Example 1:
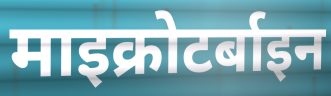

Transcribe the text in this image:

माइक्रोटर्बाइन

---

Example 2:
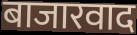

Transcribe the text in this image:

बाजारवाद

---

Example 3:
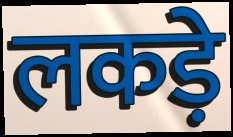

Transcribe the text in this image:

लकड़े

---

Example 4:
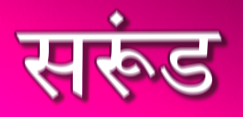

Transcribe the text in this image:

सरूंड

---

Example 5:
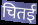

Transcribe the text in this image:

चितई